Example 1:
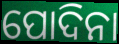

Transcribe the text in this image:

ପୋଦିନା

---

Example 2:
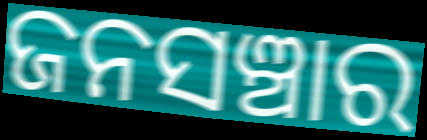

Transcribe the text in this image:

ଜନସଞ୍ଚାର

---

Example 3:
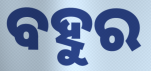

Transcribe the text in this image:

ବହୁର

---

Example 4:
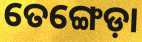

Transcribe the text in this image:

ତେଙ୍ଗେଡ଼ା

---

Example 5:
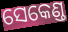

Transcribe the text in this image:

ସେକେଣ୍ଡ